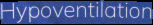
Hypoventilation